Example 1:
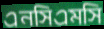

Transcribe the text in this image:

এনসিএমসি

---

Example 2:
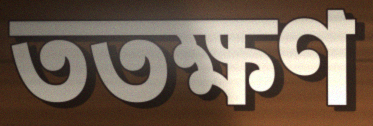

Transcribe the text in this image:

ততক্ষণ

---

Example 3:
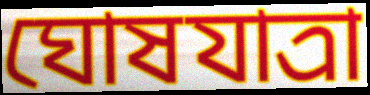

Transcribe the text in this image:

ঘোষযাত্রা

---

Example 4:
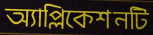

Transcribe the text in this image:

অ্যাপ্লিকেশনটি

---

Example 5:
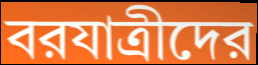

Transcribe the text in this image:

বরযাত্রীদের